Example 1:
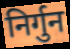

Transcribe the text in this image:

निर्गुन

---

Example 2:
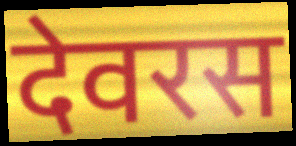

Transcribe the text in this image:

देवरस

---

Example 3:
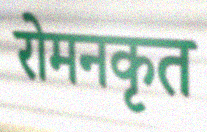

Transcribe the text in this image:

रोमनकृत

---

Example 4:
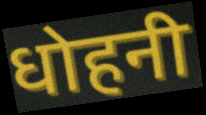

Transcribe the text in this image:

धोहनी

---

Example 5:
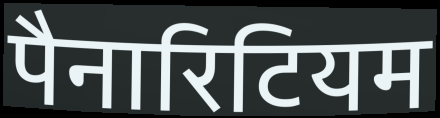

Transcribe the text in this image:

पैनारिटियम